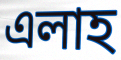
এলাহ